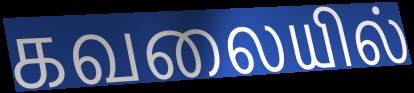
கவலையில்